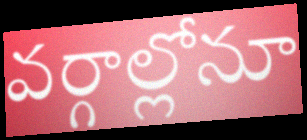
వర్గాల్లోనూ